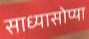
साध्यासोप्या